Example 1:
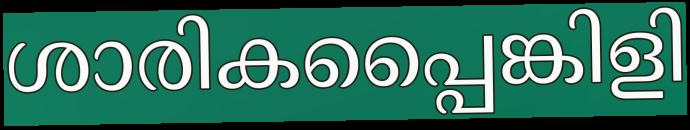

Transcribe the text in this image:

ശാരികപ്പൈങ്കിളി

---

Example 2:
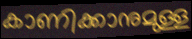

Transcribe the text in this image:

കാണിക്കാനുമുള്ള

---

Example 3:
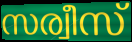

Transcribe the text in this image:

സര്വീസ്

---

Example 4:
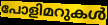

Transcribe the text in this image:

പോളിമറുകൾ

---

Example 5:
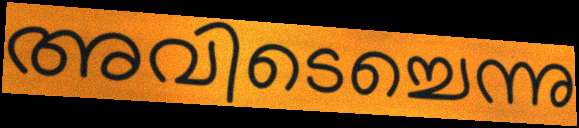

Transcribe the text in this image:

അവിടെച്ചെന്നു